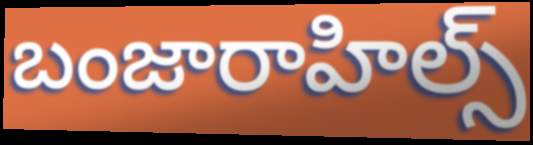
బంజారాహిల్స్